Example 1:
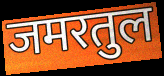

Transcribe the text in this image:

जमरतुल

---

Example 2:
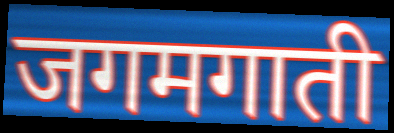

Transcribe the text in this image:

जगमगाती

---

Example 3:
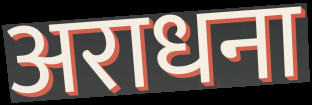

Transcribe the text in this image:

अराधना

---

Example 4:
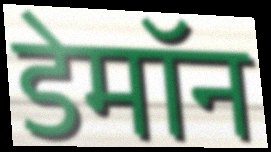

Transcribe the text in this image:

डेमॉन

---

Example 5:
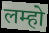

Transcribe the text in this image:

लम्हो